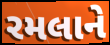
રમલાને